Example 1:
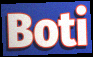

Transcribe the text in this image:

Boti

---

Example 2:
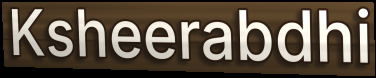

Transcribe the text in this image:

Ksheerabdhi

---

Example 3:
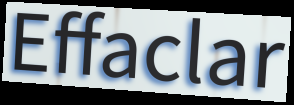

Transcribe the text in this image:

Effaclar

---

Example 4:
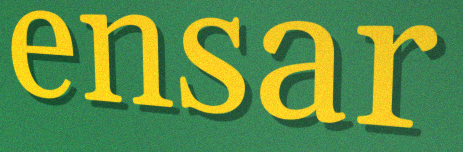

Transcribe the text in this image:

ensar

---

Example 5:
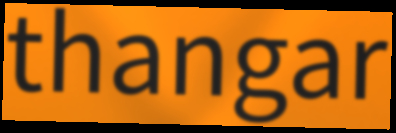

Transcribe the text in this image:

thangar